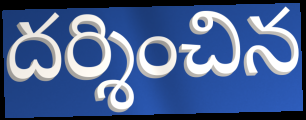
దర్శించిన